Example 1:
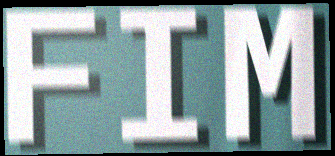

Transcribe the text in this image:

FIM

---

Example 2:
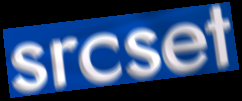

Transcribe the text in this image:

srcset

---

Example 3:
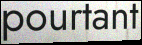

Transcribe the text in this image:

pourtant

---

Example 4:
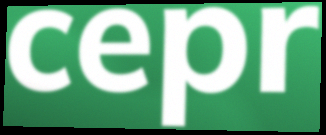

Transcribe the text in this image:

cepr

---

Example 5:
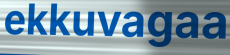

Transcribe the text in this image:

ekkuvagaa